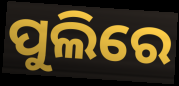
ପୁଲିରେ